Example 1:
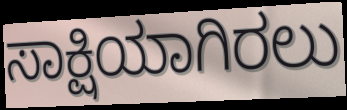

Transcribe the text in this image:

ಸಾಕ್ಷಿಯಾಗಿರಲು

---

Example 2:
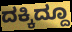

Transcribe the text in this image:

ದಕ್ಕಿದ್ದೂ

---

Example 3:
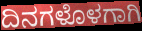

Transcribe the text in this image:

ದಿನಗಳೊಳಗಾಗಿ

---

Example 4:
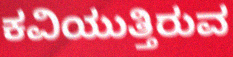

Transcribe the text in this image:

ಕವಿಯುತ್ತಿರುವ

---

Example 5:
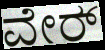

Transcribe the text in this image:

ವೇರ್‍